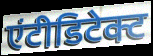
एंटीडिटेक्ट